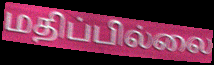
மதிப்பில்லை